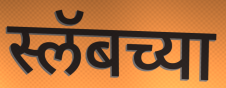
स्लॅबच्या